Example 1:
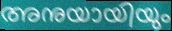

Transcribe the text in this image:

അനുയായിയും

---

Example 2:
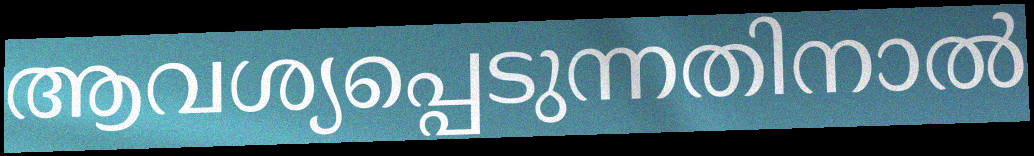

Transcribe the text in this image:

ആവശ്യപ്പെടുന്നതിനാൽ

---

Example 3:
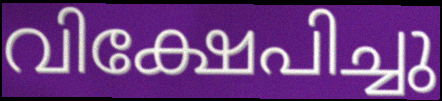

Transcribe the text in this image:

വിക്ഷേപിച്ചു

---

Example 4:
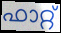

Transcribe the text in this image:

ഫാറ്റ്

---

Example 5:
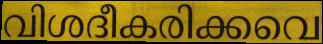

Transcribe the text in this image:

വിശദീകരിക്കവെ